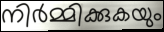
നിർമ്മിക്കുകയും